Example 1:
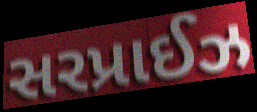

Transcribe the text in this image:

સરપ્રાઈઝ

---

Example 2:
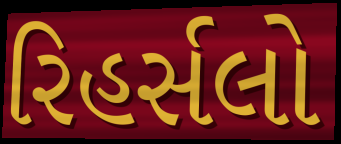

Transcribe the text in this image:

રિહર્સલો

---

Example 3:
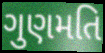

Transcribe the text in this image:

ગુણમતિ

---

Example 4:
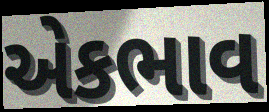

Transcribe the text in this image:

એકભાવ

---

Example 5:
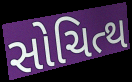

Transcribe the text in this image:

સોચિત્થ